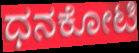
ಧನಕೋಟಿ